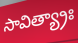
సావిత్య్రాః